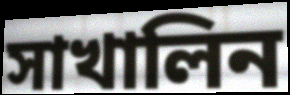
সাখালিন